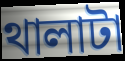
থালাটা